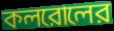
কলরোলের